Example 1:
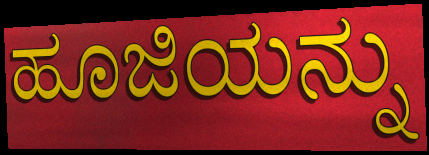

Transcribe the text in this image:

ಹೂಜಿಯನ್ನು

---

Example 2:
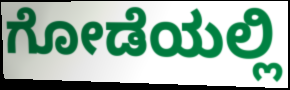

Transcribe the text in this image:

ಗೋಡೆಯಲ್ಲಿ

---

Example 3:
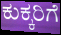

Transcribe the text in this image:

ಕುಕ್ಕರಿಗೆ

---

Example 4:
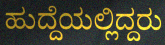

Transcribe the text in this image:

ಹುದ್ದೆಯಲ್ಲಿದ್ದರು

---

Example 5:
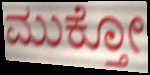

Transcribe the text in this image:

ಮುಕ್ತೋ